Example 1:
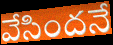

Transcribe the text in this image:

వేసిందనే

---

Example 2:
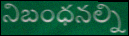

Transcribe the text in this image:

నిబంధనల్ని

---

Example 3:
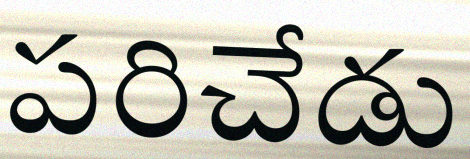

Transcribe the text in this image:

పరిచేడు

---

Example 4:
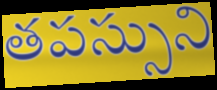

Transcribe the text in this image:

తపస్సుని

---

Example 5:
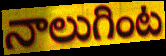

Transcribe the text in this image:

నాలుగింట